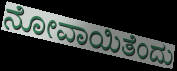
ನೋವಾಯಿತೆಂದು